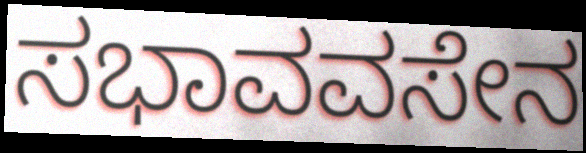
ಸಭಾವವಸೇನ